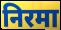
निरमा